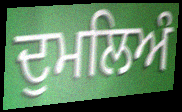
ਦੁਮਲਿਅੰ